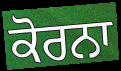
ਕੋਰਨਾ